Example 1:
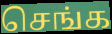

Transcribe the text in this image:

செங்க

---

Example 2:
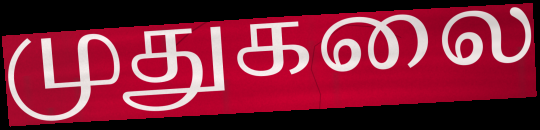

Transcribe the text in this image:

முதுகலை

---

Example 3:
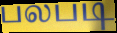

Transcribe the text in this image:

பலபடி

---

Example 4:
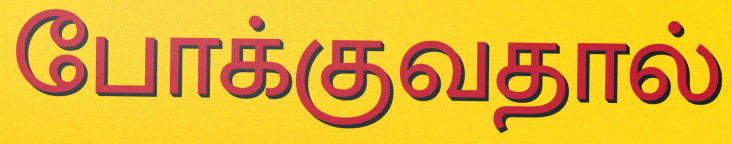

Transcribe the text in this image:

போக்குவதால்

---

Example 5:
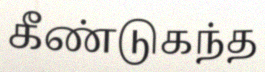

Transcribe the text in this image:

கீண்டுகந்த